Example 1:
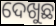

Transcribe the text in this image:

ଦେଖୁଛ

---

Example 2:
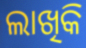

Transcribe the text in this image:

ଲାଖିକି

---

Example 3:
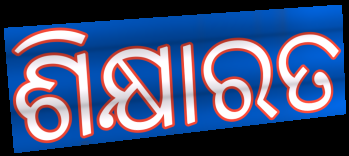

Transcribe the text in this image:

ଶିକ୍ଷାରତ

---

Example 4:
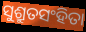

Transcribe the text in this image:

ସୁଶ୍ରୁତସଂହିତା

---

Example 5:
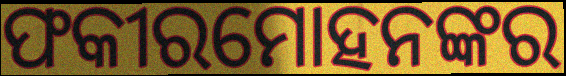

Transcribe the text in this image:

ଫକୀରମୋହନଙ୍କର